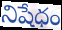
నిషేధం